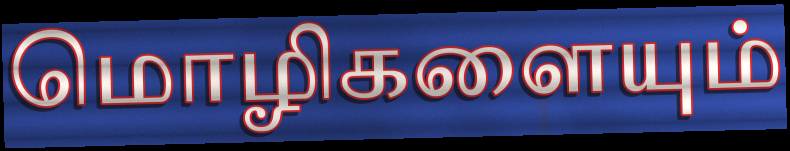
மொழிகளையும்